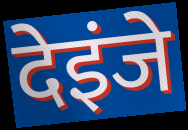
देइंजे